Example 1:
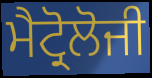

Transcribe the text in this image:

ਮੈਟ੍ਰੋਲੋਜੀ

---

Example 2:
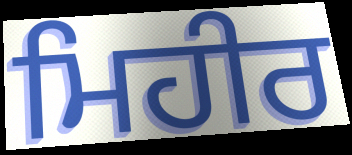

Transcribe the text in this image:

ਮਿਹੀਰ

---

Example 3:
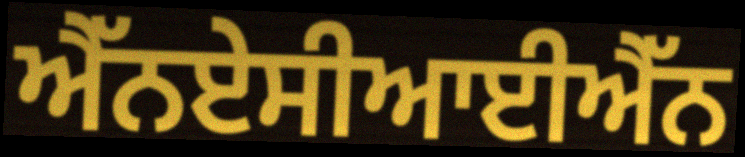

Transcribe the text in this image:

ਐੱਨਏਸੀਆਈਐੱਨ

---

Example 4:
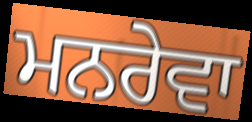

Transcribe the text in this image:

ਮਨਰੇਵਾ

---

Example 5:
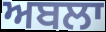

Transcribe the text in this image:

ਅਬਲਾ